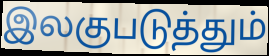
இலகுபடுத்தும்